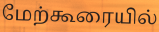
மேற்கூரையில்